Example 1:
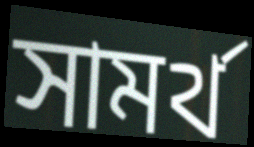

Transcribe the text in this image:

সামর্থ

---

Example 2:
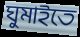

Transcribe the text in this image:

ঘুমাইতে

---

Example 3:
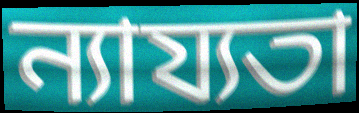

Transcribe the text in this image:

ন্যায্যতা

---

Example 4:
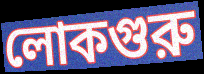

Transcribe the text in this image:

লোকগুরু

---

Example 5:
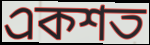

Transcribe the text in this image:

একশত